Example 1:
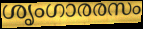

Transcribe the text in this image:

ശൃംഗാരരസം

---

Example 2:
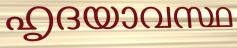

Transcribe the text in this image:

ഹൃദയാവസ്ഥ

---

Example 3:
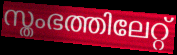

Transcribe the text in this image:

സ്തംഭത്തിലേറ്റ്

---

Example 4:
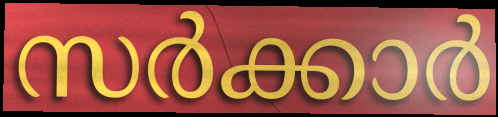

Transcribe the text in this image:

സർക്കാർ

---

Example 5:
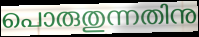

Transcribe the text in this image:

പൊരുതുന്നതിനു